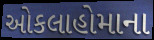
ઓકલાહોમાના